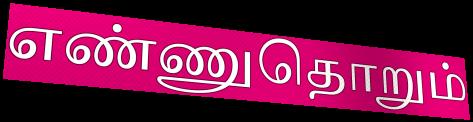
எண்ணுதொறும்